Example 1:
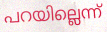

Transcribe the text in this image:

പറയില്ലെന്ന്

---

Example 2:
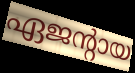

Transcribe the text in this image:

ഏജന്റായ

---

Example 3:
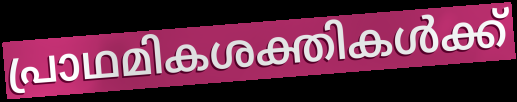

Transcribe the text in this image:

പ്രാഥമികശക്തികൾക്ക്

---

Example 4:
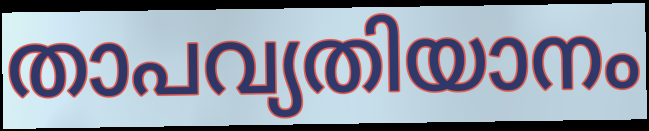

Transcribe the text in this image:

താപവ്യതിയാനം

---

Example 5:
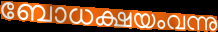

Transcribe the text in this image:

ബോധക്ഷയംവന്നു